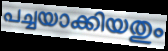
പച്ചയാക്കിയതും